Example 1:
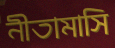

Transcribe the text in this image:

নীতামাসি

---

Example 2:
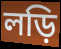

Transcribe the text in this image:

লড়ি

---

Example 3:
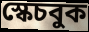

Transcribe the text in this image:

স্কেচবুক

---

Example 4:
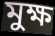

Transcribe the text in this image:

মুক্ষ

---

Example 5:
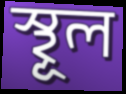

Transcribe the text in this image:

স্থূল